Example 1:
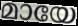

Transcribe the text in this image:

മായേ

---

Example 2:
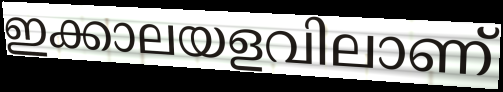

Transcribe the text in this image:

ഇക്കാലയളവിലാണ്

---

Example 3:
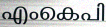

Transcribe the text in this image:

എംകെപി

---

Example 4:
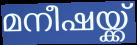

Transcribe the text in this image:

മനീഷയ്ക്ക്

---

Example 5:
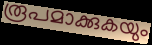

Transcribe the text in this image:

രൂപമാക്കുകയും